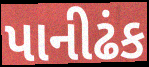
પાનીઢંક